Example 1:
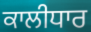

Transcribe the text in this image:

ਕਾਲੀਧਾਰ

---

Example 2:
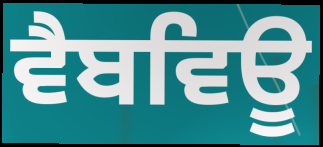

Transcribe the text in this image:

ਵੈਬਵਿਊ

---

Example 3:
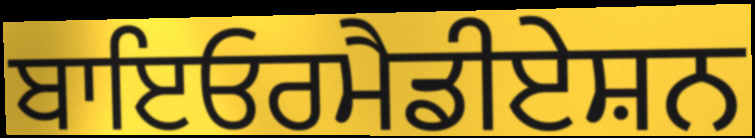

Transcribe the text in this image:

ਬਾਇਓਰਮੈਡੀਏਸ਼ਨ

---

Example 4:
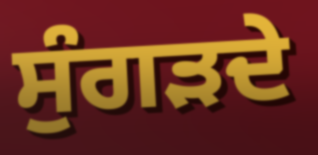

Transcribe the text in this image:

ਸੁੰਗੜਦੇ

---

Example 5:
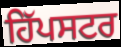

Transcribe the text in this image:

ਹਿੱਪਸਟਰ